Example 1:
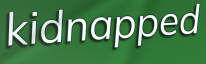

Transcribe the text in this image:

kidnapped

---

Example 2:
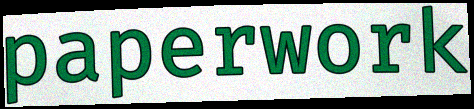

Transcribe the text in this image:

paperwork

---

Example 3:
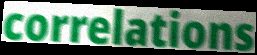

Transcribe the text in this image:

correlations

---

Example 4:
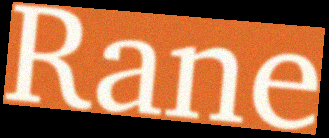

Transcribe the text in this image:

Rane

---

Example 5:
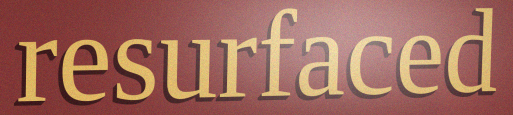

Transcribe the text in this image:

resurfaced